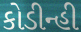
કોડીન્હી